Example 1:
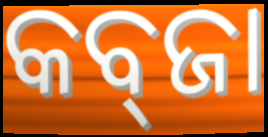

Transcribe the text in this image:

କବ୍‌ଜା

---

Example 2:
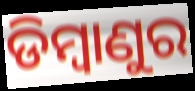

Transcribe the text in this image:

ଡିମ୍ବାଣୁର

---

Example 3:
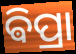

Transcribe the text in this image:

ଵିପ୍ରା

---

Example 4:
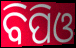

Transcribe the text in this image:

ବିପିଓ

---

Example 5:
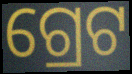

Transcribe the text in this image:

ଗ୍ରେଟ